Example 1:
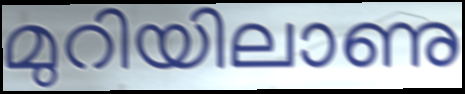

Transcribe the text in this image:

മുറിയിലാണു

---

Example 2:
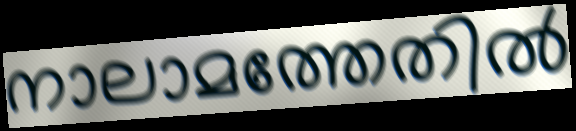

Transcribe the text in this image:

നാലാമത്തേതിൽ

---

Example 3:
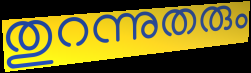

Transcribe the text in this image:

തുറന്നുതരും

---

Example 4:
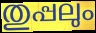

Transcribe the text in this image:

തുപ്പലും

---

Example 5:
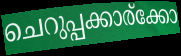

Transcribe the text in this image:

ചെറുപ്പക്കാര്ക്കോ